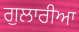
ਗੁਲਾਰੀਆ